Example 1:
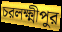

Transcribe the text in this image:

চরলক্ষ্মীপুর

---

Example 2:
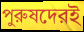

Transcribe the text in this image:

পুরুষদেরই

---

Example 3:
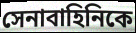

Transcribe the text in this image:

সেনাবাহিনিকে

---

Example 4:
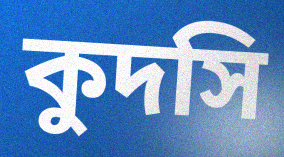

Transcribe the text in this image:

কুদসি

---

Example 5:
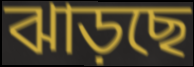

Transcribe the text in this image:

ঝাড়ছে